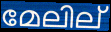
മേലില്